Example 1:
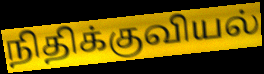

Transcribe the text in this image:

நிதிக்குவியல்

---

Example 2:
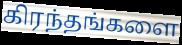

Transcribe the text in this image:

கிரந்தங்களை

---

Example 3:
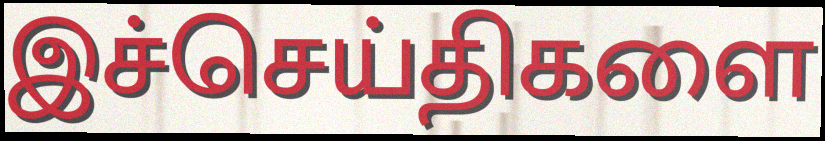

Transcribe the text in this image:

இச்செய்திகளை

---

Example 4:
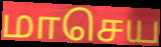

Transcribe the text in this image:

மாசெய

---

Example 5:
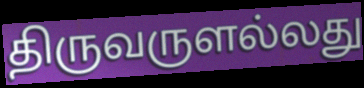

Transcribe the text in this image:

திருவருளல்லது